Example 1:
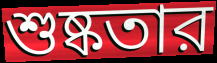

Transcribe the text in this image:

শুষ্কতার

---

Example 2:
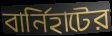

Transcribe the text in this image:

বার্নিহাটের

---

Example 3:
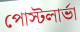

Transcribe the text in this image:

পোস্টলার্ভা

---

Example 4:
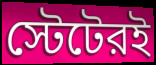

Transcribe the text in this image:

স্টেটেরই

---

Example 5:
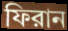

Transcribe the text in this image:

ফিরান